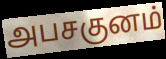
அபசகுனம்